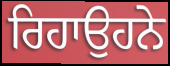
ਰਿਹਾਉਹਨੇ